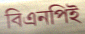
বিএনপিই